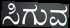
ಸಿಗುವ